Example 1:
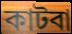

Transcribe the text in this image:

কাটবা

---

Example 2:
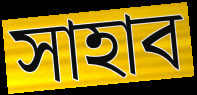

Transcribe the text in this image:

সাহাব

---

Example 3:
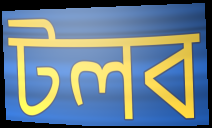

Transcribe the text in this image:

টলব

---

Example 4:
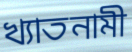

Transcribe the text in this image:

খ্যাতনামী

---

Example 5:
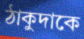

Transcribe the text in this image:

ঠাকুদাকে